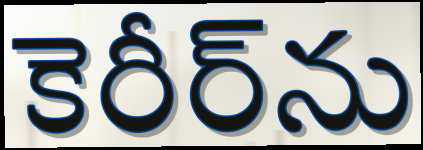
కెరీర్‌ను